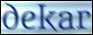
dekar